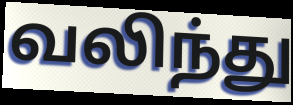
வலிந்து